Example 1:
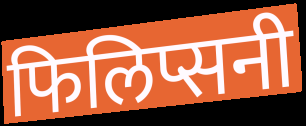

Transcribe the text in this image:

फिलिप्सनी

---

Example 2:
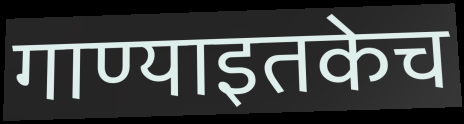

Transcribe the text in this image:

गाण्याइतकेच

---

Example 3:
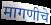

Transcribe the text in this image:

मागणीचे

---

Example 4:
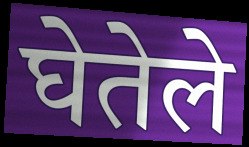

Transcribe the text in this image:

घेतेले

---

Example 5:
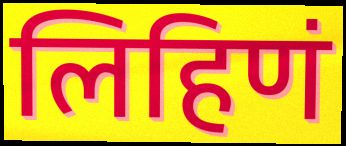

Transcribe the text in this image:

लिहिणं